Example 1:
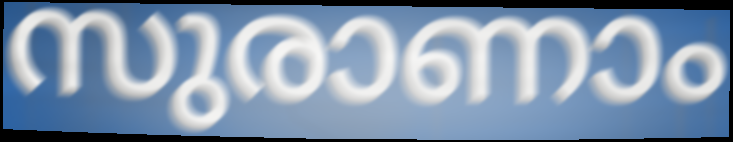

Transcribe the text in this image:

സുരാണാം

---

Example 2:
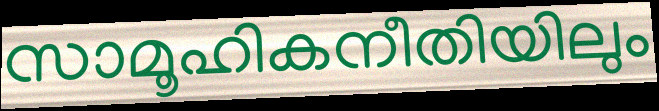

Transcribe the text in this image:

സാമൂഹികനീതിയിലും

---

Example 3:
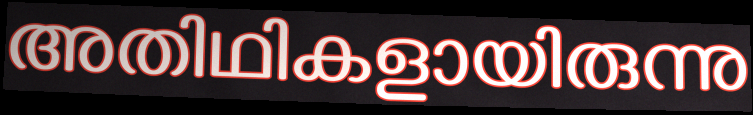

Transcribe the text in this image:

അതിഥികളായിരുന്നു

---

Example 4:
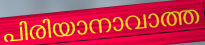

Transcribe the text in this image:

പിരിയാനാവാത്ത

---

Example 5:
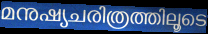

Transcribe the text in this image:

മനുഷ്യചരിത്രത്തിലൂടെ